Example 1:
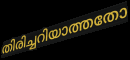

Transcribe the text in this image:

തിരിച്ചറിയാത്തതോ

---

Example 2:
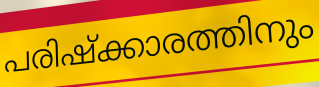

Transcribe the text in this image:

പരിഷ്ക്കാരത്തിനും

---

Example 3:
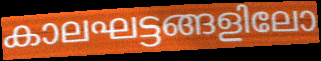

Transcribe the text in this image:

കാലഘട്ടങ്ങളിലോ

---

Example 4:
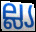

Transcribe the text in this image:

ല്ല്യ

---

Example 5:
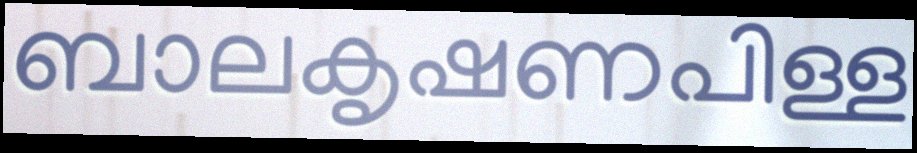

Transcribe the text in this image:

ബാലകൃഷണപിള്ള